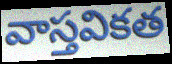
వాస్తవికత